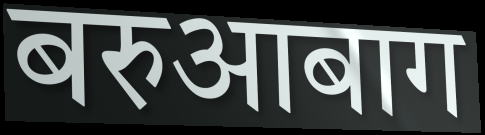
बरुआबाग